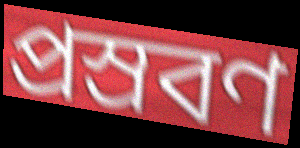
প্রস্রবণ